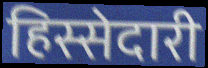
हिस्‍सेदारी